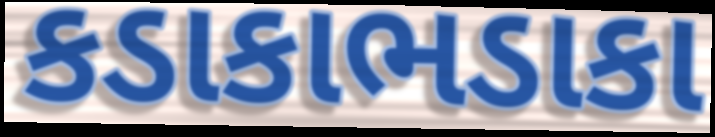
કડાકાભડાકા